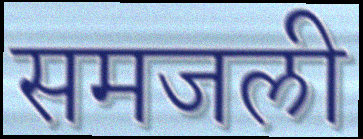
समजली